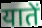
यातें